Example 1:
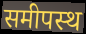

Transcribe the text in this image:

समीपस्थ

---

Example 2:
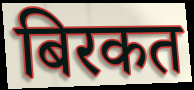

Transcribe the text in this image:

बिरकत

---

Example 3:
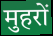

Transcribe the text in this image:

मुहरों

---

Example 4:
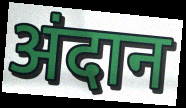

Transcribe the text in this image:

अंदान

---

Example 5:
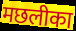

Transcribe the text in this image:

मछलीका